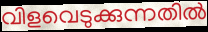
വിളവെടുക്കുന്നതിൽ